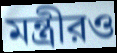
মন্ত্রীরও